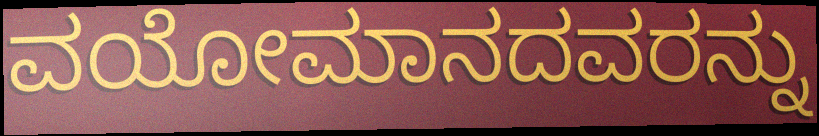
ವಯೋಮಾನದವರನ್ನು